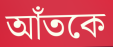
আঁতকে